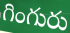
గింగురు